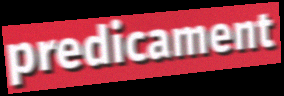
predicament